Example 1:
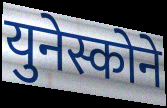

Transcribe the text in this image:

युनेस्कोने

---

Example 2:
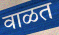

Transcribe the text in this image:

वाळत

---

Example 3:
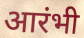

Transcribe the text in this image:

आरंभी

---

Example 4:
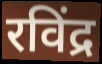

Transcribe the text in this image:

रविंद्र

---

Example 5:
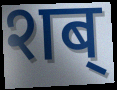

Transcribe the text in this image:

शब्